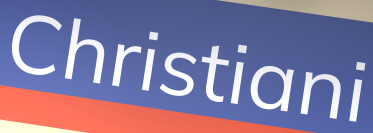
Christiani